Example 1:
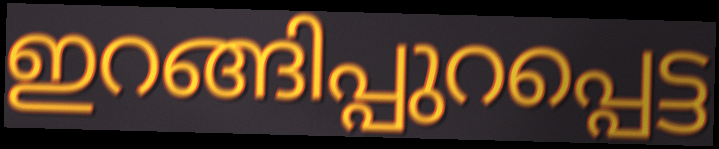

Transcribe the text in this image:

ഇറങ്ങിപ്പുറപ്പെട്ട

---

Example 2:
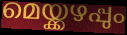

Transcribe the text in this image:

മെയ്ക്കഴപ്പും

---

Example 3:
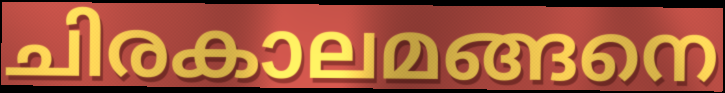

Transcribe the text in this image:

ചിരകാലമങ്ങനെ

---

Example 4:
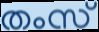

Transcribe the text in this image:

തംസ്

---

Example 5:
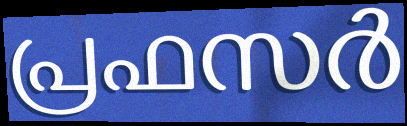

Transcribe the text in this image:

പ്രഫസർ